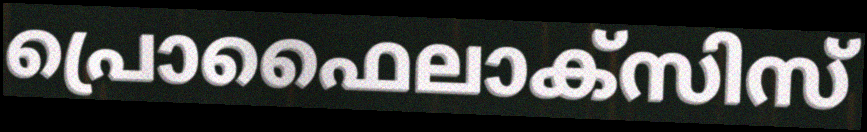
പ്രൊഫൈലാക്സിസ്